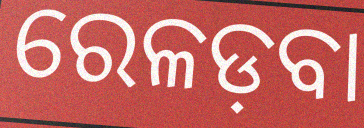
ରେଳଡ଼ବା